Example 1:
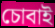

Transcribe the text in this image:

চোবাই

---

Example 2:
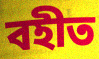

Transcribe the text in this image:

বহীত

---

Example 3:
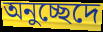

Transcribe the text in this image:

অনুচ্ছেদে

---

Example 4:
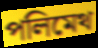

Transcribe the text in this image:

পলিমেথ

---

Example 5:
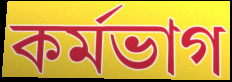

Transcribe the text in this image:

কৰ্মভাগ